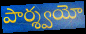
పార్శ్వయో